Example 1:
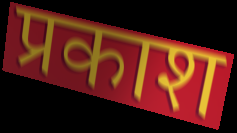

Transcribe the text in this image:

प्रकाश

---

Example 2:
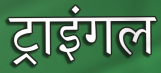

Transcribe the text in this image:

ट्राइंगल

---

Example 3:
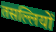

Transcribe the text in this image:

तसल्लियों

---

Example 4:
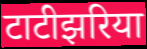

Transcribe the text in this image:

टाटीझरिया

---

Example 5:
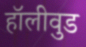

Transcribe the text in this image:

हॉलीवुड